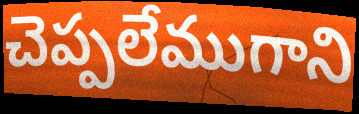
చెప్పలేముగాని